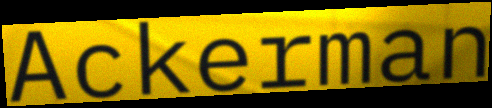
Ackerman